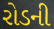
રોડની